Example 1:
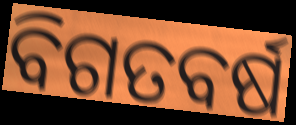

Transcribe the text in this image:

ବିଗତବର୍ଷ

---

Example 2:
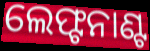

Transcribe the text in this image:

ଲେଫ୍ଟନାଣ୍ଟ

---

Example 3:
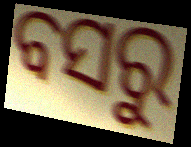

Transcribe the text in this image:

ବସରୁ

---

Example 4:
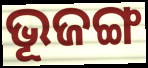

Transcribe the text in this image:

ଭୂଜଙ୍ଗ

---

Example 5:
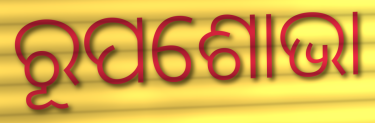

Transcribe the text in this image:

ରୂପଶୋଭା